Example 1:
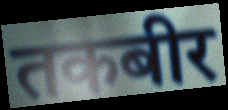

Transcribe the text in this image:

तकबीर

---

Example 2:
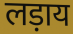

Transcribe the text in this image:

लड़ाय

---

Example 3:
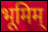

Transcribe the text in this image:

भूमिम्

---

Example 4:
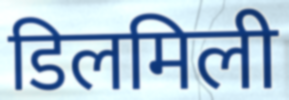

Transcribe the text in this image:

डिलमिली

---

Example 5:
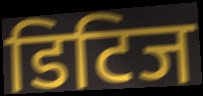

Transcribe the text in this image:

डिटिज